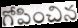
గోపించిన